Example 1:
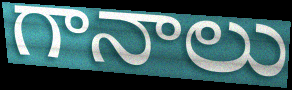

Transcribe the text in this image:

గానాలు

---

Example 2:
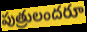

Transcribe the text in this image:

పుత్రులందరూ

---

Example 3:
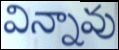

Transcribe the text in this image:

విన్నావు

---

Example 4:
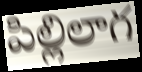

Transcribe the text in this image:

పిల్లిలాగ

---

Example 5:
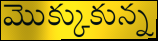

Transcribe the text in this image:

మొక్కుకున్న